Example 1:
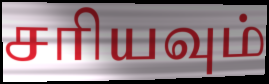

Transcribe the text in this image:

சரியவும்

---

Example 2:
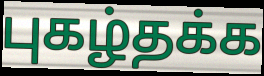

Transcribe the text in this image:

புகழ்தக்க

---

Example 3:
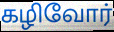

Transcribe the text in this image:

கழிவோர்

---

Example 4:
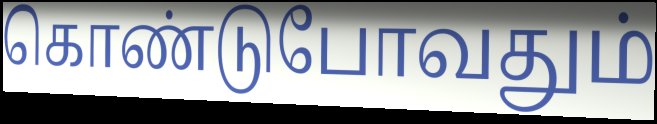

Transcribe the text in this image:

கொண்டுபோவதும்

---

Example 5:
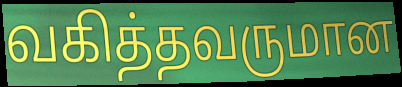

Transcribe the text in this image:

வகித்தவருமான